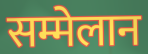
सम्मेलान